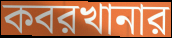
কবরখানার